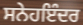
ਸਨੇਹਇੰਦਰ